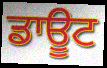
ਡਾਊਟ